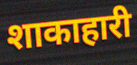
शाकाहारी